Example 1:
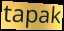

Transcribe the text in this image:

tapak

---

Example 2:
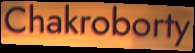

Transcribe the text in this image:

Chakroborty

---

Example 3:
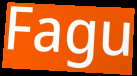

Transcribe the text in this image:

Fagu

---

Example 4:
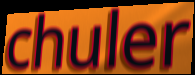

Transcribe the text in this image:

chuler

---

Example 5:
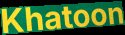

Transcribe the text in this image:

Khatoon